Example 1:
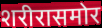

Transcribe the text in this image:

शरीरासमोर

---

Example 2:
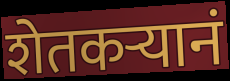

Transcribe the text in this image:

शेतकर्‍यानं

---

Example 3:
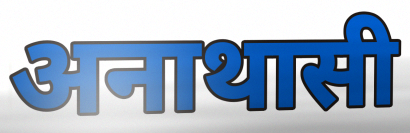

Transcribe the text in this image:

अनाथासी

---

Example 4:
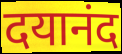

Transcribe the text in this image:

दयानंद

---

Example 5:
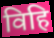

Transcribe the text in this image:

विहि